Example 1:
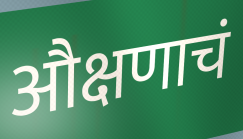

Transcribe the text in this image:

औक्षणाचं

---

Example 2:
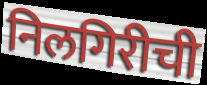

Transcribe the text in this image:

निलगिरीची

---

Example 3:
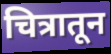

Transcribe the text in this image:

चित्रातून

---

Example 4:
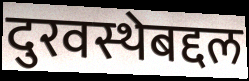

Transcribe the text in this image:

दुरवस्थेबद्दल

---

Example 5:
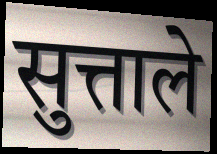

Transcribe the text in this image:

सुत्ताले